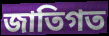
জাতিগত